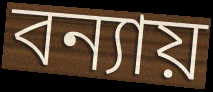
বন্যায়